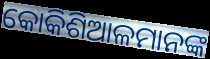
କୋକିଶିଆଳମାନଙ୍କ